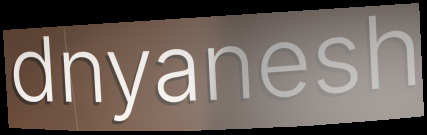
dnyanesh